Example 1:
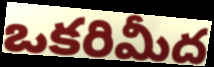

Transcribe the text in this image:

ఒకరిమీద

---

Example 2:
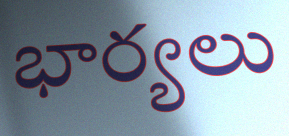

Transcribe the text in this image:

భార్యలు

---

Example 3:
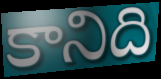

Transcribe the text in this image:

కానిది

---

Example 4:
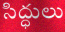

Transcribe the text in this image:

సిద్ధులు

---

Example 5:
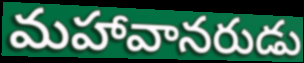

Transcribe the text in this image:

మహావానరుడు